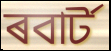
ৰবাৰ্ট